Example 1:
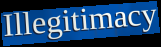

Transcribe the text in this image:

Illegitimacy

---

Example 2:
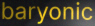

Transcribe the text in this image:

baryonic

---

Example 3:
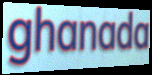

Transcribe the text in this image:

ghanada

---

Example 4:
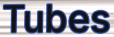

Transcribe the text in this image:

Tubes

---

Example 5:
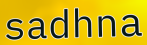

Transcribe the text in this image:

sadhna